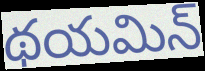
థయమిన్